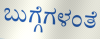
ಬುಗ್ಗೆಗಳಂತೆ